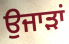
ਉਜਾੜਾਂ